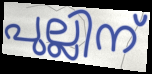
പുല്ലിന്